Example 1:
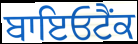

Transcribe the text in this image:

ਬਾਇਓਟੈਂਕ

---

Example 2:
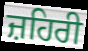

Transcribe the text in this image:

ਜ਼ਹਿਰੀ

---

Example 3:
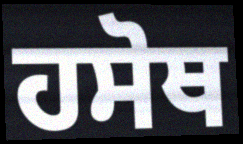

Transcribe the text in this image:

ਹਸੋਥ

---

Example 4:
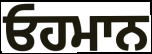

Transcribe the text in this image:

ਓਹਮਾਨ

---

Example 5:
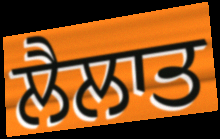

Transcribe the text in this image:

ਲੈਲਾਤ